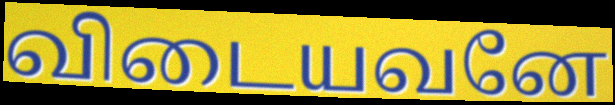
விடையவனே